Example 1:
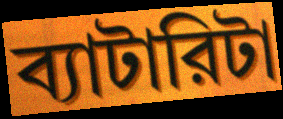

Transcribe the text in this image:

ব্যাটারিটা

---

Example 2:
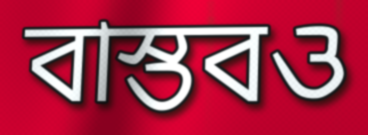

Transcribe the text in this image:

বাস্তবও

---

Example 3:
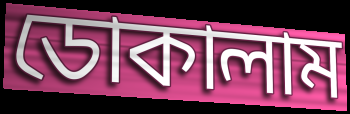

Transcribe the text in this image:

ডোকালাম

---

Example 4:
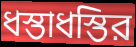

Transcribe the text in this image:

ধস্তাধস্তির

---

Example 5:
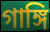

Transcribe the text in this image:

গাঙ্গি